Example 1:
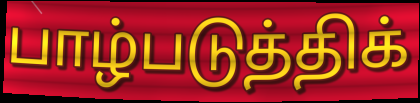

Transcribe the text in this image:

பாழ்படுத்திக்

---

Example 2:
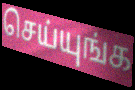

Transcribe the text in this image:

செய்யுங்க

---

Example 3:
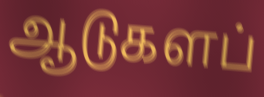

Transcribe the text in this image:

ஆடுகளப்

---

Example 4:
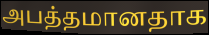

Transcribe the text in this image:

அபத்தமானதாக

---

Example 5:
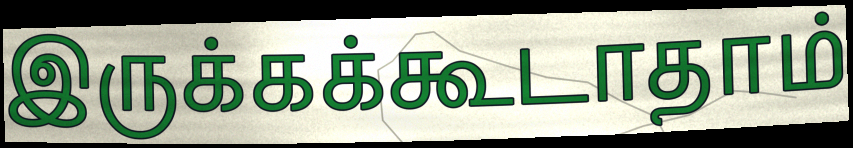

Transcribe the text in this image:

இருக்கக்கூடாதாம்